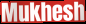
Mukhesh